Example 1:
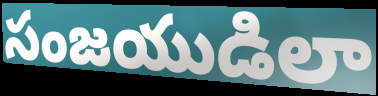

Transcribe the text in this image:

సంజయుడిలా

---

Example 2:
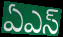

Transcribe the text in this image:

ఏఎస్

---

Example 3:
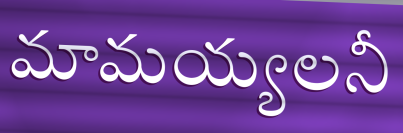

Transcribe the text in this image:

మామయ్యలనీ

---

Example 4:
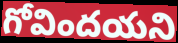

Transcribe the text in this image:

గోవిందయని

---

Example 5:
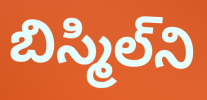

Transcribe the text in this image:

బిస్మిల్‌ని